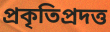
প্রকৃতিপ্রদত্ত